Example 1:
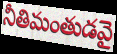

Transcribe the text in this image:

నీతిమంతుడవై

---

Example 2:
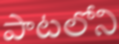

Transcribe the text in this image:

పాటలోని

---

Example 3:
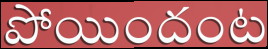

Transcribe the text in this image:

పోయిందంట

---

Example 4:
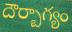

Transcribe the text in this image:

దౌర్బాగ్యం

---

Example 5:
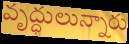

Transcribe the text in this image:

వృద్ధులున్నారు